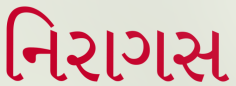
નિરાગસ